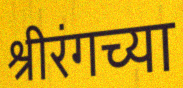
श्रीरंगच्या